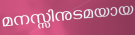
മനസ്സിനുടമയായ